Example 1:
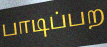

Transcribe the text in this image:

பாடிப்பற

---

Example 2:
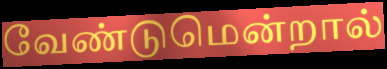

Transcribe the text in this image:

வேண்டுமென்றால்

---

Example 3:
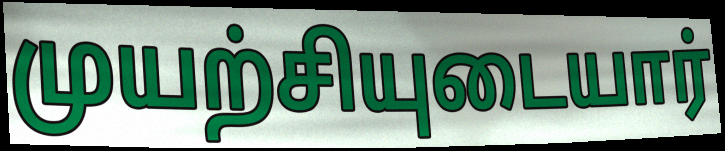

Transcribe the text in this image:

முயற்சியுடையார்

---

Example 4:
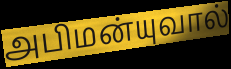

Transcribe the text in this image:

அபிமன்யுவால்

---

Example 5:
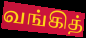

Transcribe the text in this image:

வங்கித்